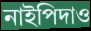
নাইপিদাও